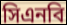
সিএনবি